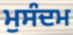
ਮੁਸੰਦਮ